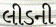
લીડની